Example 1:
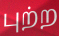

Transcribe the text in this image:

புற்ற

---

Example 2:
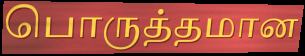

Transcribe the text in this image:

பொருத்தமான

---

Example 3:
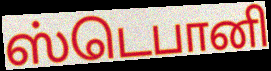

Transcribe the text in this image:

ஸ்டெபானி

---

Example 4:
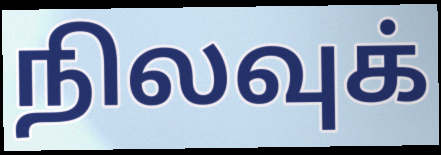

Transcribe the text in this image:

நிலவுக்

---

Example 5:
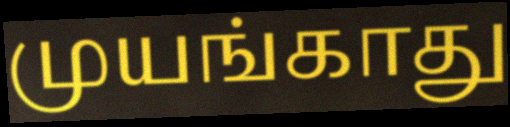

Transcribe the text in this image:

முயங்காது